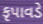
કૃપાવડે